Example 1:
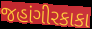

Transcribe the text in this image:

જહાંગીરકાકા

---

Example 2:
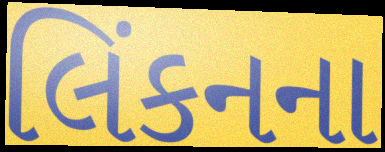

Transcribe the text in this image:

લિંકનના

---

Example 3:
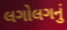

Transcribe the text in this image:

લગોલગનું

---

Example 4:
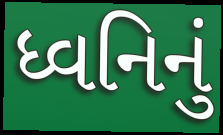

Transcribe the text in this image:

ધ્વનિનું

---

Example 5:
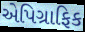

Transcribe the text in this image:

એપિગ્રાફિક